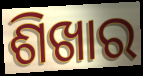
ଶିଖାର